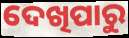
ଦେଖିପାରୁ